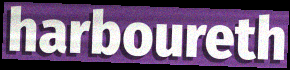
harboureth